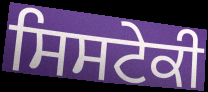
ਸਿਸਟੇਕੀ